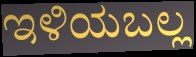
ಇಳಿಯಬಲ್ಲ